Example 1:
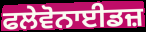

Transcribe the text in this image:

ਫਲੇਵੋਨਾਈਡਜ਼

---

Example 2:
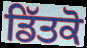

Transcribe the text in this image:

ਡਿੱਤਕੋ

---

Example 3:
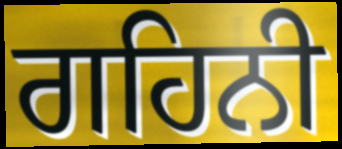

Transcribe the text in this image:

ਗਹਿਨੀ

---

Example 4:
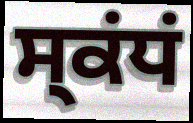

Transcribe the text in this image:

ਸ੍ਕਂਧਂ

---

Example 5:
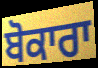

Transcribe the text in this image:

ਬੋਕਾਰਾ